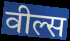
वील्स